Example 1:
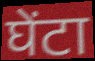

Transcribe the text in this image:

घेंटा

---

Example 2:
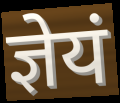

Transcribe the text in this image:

ज्ञेयं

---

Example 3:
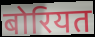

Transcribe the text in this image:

बोरियत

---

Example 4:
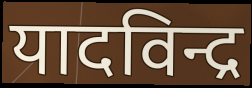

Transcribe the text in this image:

यादविन्द्र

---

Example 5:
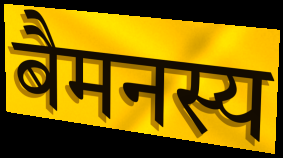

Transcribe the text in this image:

बैमनस्य